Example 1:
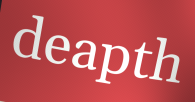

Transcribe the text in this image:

deapth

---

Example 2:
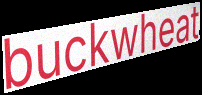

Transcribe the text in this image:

buckwheat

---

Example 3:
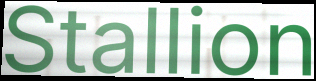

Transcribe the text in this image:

Stallion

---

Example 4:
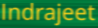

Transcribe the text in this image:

Indrajeet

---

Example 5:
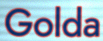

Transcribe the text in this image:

Golda